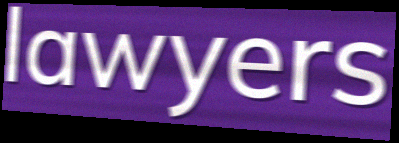
lawyers